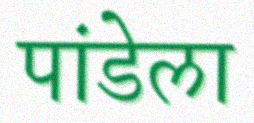
पांडेला